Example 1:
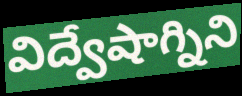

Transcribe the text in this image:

విద్వేషాగ్నిని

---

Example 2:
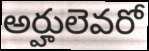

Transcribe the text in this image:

అర్హులెవరో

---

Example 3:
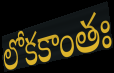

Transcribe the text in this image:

లోకకాంతః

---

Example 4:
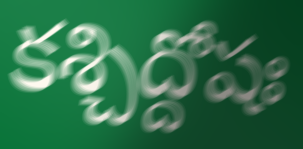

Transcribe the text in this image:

కశ్చిద్దోషః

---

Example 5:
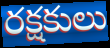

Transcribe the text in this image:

రక్షకులు